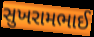
સુખરામભાઈ